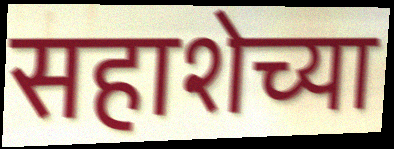
सहाशेच्या